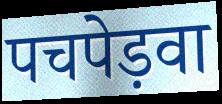
पचपेड़वा